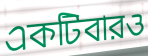
একটিবারও